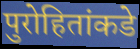
पुरोहितांकडे